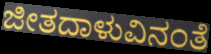
ಜೀತದಾಳುವಿನಂತೆ